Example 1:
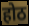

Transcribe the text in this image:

होठ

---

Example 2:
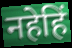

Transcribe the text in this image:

नहेहिं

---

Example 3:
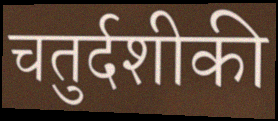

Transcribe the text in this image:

चतुर्दशीकी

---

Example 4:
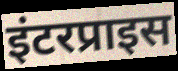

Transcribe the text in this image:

इंटरप्राइस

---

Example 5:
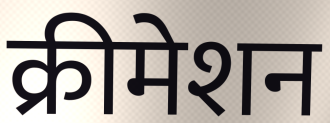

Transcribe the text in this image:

क्रीमेशन